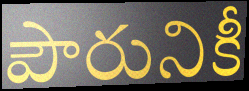
పౌరునికీ